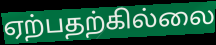
ஏற்பதற்கில்லை